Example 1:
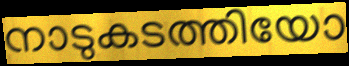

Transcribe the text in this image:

നാടുകടത്തിയോ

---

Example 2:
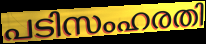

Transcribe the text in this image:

പടിസംഹരതി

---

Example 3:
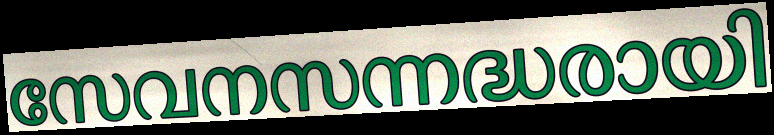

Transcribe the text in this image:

സേവനസന്നദ്ധരായി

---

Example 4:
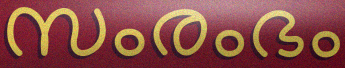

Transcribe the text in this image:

സംരംഭം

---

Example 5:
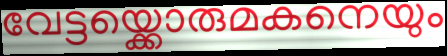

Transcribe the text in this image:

വേട്ടയ്ക്കൊരുമകനെയും